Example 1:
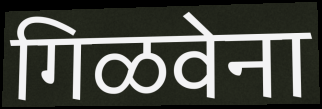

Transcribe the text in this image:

गिळवेना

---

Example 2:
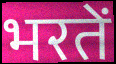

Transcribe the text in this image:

भरतें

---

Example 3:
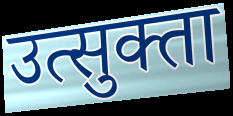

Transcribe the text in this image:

उत्सुक्ता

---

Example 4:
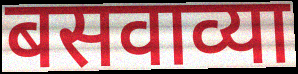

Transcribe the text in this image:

बसवाव्या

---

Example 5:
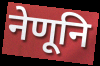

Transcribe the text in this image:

नेणूनि